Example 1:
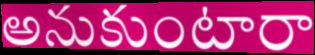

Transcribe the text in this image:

అనుకుంటారా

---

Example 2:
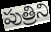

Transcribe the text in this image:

పుత్రిని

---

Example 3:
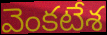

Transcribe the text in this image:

వెంకటేశ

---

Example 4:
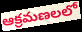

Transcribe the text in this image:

ఆక్రమణలలో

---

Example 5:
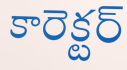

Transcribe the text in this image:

కారెక్టర్